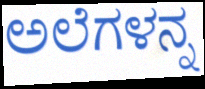
ಅಲೆಗಳನ್ನ